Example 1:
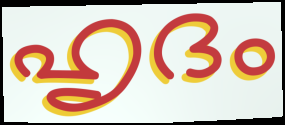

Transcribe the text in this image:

ഹൃദം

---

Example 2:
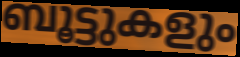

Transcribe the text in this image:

ബൂട്ടുകളും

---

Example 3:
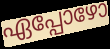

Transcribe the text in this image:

ഏപ്പോഴോ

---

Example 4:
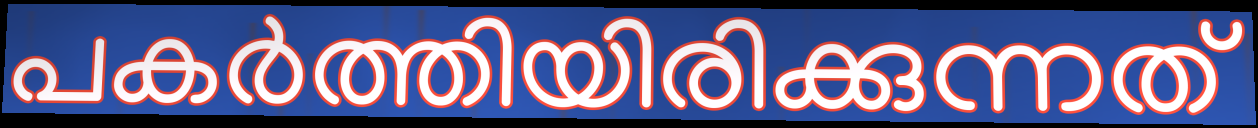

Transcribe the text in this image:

പകർത്തിയിരിക്കുന്നത്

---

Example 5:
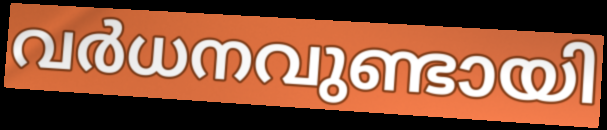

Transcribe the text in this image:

വർധനവുണ്ടായി